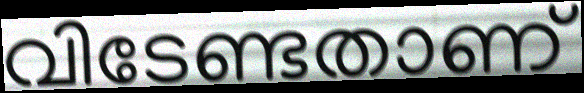
വിടേണ്ടതാണ്